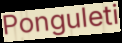
Ponguleti